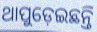
ଥାପୁଡ଼େଇଛନ୍ତି